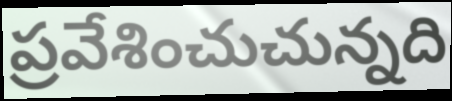
ప్రవేశించుచున్నది